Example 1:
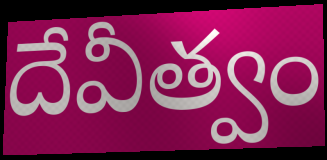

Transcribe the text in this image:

దేవీత్వం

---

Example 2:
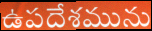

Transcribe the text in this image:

ఉపదేశమును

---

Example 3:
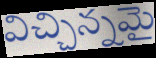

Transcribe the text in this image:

విచ్చిన్నమై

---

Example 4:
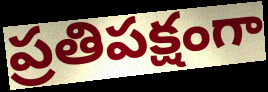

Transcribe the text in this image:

ప్రతిపక్షంగా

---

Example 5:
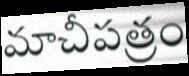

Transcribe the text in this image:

మాచీపత్రం